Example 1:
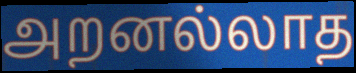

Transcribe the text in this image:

அறனல்லாத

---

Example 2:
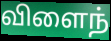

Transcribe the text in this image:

விளைந்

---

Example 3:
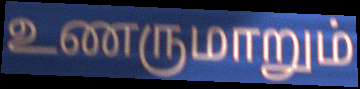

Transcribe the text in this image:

உணருமாறும்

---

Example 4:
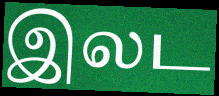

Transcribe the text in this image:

இலட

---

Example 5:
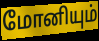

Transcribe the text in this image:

மோனியும்